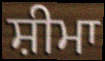
ਸ਼ੀਮਾ